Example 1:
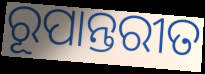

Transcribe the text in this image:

ରୂପାନ୍ତରୀତ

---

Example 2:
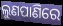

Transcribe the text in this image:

ଲୁଣପାଣିରେ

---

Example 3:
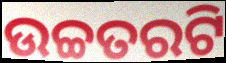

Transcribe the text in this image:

ଉଚ୍ଚତରଟି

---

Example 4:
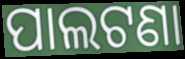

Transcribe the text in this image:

ପାଲଟଣା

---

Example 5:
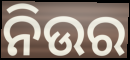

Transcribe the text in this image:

ନିଉର